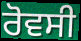
ਰੋਵਸੀ